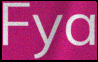
Fya